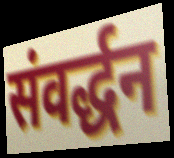
संवर्द्धन